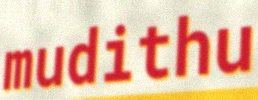
mudithu